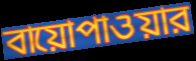
বায়োপাওয়ার